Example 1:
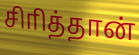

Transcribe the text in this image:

சிரித்தான்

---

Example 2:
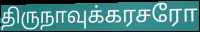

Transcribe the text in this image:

திருநாவுக்கரசரோ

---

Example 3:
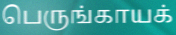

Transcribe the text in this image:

பெருங்காயக்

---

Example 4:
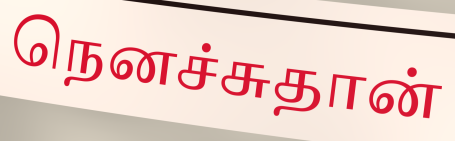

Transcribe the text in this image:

நெனச்சுதான்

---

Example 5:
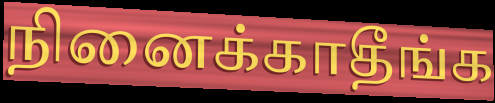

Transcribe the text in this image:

நினைக்காதீங்க